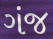
ગંજ